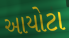
આયોટા